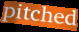
pitched